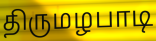
திருமழபாடி